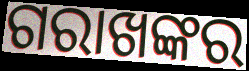
ଗରାଖଙ୍କର